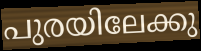
പുരയിലേക്കു